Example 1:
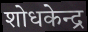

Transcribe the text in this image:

शोधकेन्द्र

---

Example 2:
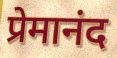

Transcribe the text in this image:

प्रेमानंद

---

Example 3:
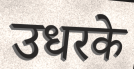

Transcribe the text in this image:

उधरके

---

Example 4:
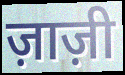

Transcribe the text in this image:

ज़ाज़ी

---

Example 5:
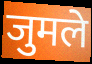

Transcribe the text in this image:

जुमले